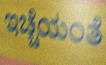
ಇಚ್ಚೆಯಂತೆ